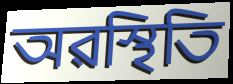
অৱস্থিতি